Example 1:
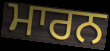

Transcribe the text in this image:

ਮਾਰਨ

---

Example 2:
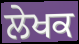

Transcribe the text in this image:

ਲੇਖਕ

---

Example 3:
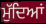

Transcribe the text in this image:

ਮੁੱਦਿਆਂ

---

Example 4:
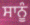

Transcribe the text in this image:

ਸਾਨੂੰ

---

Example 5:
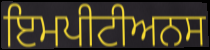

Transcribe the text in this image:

ਇਮਪੀਟੀਅਨਸ